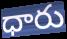
ధారు